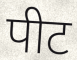
पीट